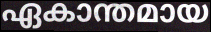
ഏകാന്തമായ